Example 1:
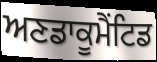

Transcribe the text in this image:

ਅਣਡਾਕੂਮੈਂਟਿਡ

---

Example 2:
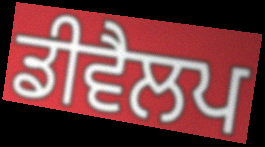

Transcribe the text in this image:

ਡੀਵੈਲਪ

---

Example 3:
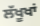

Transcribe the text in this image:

ਲੱਖੂਖਾਂ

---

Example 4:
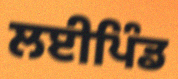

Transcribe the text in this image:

ਲਈਪਿੰਡ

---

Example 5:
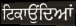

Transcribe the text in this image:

ਟਿਕਾਉਂਦਿਆਂ